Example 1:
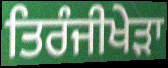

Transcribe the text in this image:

ਤਿਰੰਜੀਖੇੜਾ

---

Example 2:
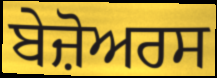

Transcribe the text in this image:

ਬੇਜ਼ੋਅਰਸ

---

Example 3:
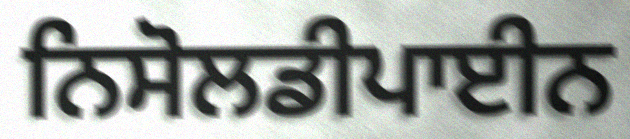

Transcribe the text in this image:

ਨਿਸੋਲਡੀਪਾਈਨ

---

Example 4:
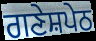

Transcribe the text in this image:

ਗਣੇਸ਼ਪੇਠ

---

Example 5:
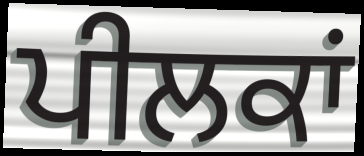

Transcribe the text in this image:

ਪੀਲਕਾਂ